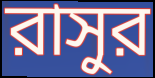
রাসুর